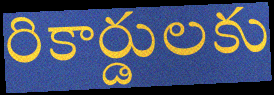
రికార్డులకు